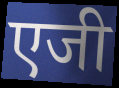
एजी